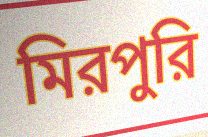
মিরপুরি